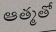
ఆత్మతో